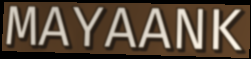
MAYAANK